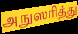
அநுஸரித்து